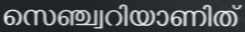
സെഞ്ച്വറിയാണിത്